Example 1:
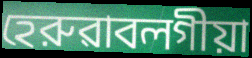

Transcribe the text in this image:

হেৰুৱাবলগীয়া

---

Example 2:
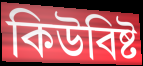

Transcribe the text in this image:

কিউবিষ্ট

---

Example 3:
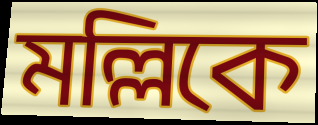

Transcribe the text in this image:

মল্লিকে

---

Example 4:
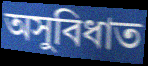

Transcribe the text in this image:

অসুবিধাত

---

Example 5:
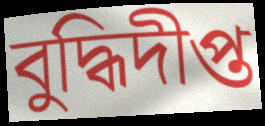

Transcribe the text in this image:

বুদ্ধিদীপ্ত